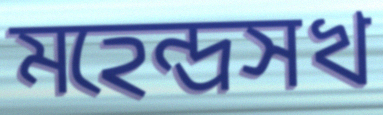
মহেন্দ্রসখ